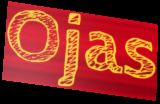
Ojas